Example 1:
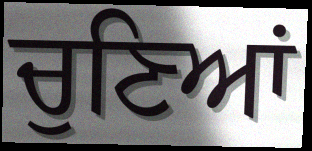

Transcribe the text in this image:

ਚੁਣਿਆਂ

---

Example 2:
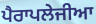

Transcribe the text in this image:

ਪੈਰਾਪਲੇਜੀਆ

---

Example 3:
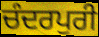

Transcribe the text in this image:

ਚੰਦਰਪੁਰੀ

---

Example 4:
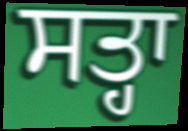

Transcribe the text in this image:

ਸਤ੍ਹਾ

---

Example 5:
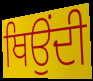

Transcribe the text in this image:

ਥਿਉਂਦੀ